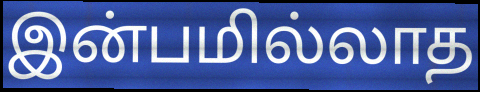
இன்பமில்லாத